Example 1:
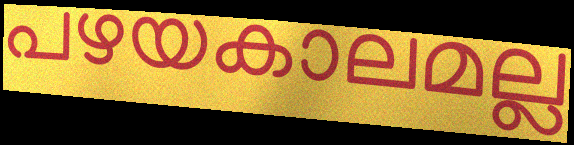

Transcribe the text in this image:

പഴയകാലമല്ല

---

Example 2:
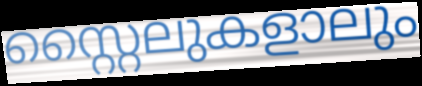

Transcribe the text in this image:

സ്റ്റൈലുകളാലും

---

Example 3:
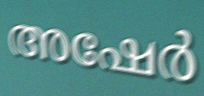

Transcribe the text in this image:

അഷേർ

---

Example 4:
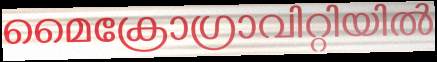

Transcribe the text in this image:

മൈക്രോഗ്രാവിറ്റിയിൽ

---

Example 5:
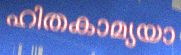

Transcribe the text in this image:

ഹിതകാമ്യയാ